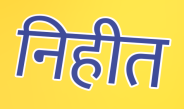
निहीत